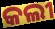
କଲୀ